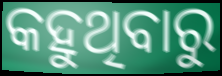
କହୁଥିବାରୁ